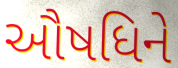
ઔષધિને